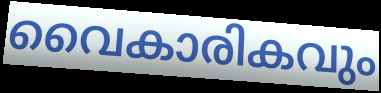
വൈകാരികവും